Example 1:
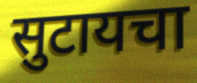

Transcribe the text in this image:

सुटायचा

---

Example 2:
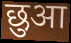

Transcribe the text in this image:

छुआ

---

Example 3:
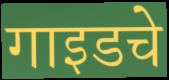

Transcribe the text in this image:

गाइडचे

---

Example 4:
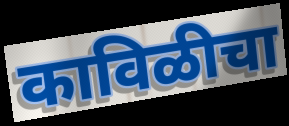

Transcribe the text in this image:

काविळीचा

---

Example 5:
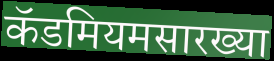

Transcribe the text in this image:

कॅडमियमसारख्या